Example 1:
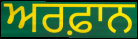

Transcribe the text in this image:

ਅਰਫ਼ਾਨ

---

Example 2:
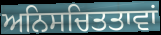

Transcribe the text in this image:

ਅਨਿਸਚਿਤਤਾਵਾਂ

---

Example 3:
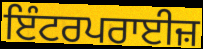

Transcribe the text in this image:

ਇੰਟਰਪਰਾਈਜ਼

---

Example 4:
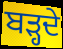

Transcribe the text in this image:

ਬੜ੍ਹਦੇ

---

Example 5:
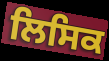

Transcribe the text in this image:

ਲਿਸਿਕ